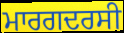
ਮਾਰਗਦਰਸੀ